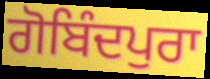
ਗੋਬਿੰਦਪੁਰਾ